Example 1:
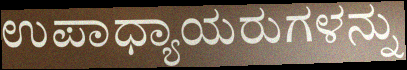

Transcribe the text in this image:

ಉಪಾಧ್ಯಾಯರುಗಳನ್ನು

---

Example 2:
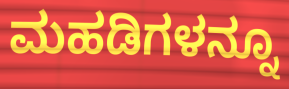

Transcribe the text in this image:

ಮಹಡಿಗಳನ್ನೂ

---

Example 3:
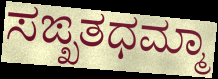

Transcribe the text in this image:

ಸಙ್ಖತಧಮ್ಮಾ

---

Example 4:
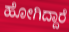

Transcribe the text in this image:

ಹೋಗಿದ್ದಾರೆ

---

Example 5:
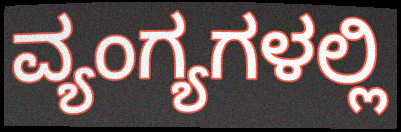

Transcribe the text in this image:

ವ್ಯಂಗ್ಯಗಳಲ್ಲಿ